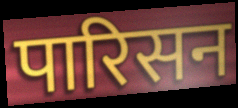
पारिसन